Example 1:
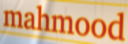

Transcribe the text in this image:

mahmood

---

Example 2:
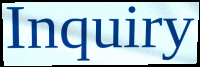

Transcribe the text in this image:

Inquiry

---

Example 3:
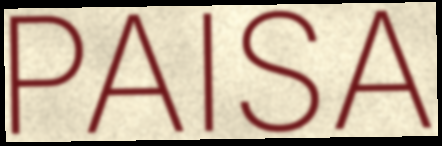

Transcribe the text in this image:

PAISA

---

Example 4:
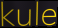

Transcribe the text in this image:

kule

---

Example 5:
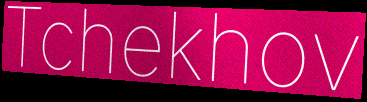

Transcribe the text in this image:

Tchekhov